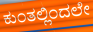
ಕುಂತಲ್ಲಿಂದಲೇ